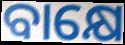
ବାକ୍ଷେ